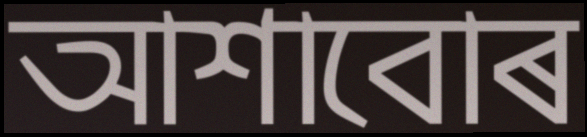
আশাবোৰ